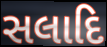
સલાદિ